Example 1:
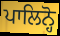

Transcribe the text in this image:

ਪਾਲਿਨ੍ਹੋ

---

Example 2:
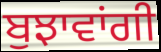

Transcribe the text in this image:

ਬੁਝਾਵਾਂਗੀ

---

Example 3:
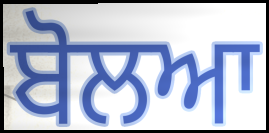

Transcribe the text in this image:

ਬੋਲਆ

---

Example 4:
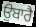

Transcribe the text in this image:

ਉਬਾਰੈ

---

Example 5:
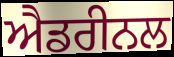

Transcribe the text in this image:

ਐਡਰੀਨਲ